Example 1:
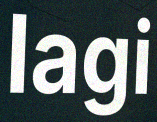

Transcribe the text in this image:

lagi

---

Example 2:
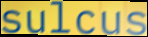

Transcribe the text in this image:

sulcus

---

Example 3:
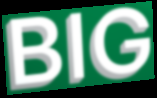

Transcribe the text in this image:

BIG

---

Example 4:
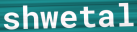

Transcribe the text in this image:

shwetal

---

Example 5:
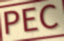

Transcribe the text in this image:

PEC